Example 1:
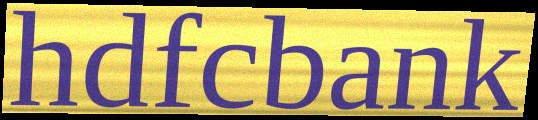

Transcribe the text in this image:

hdfcbank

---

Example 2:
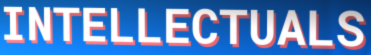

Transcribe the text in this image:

INTELLECTUALS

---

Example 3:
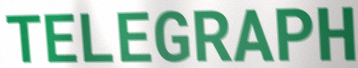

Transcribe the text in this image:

TELEGRAPH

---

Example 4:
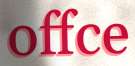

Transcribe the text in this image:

offce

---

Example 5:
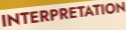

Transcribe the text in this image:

INTERPRETATION